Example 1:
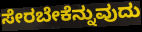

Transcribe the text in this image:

ಸೇರಬೇಕೆನ್ನುವುದು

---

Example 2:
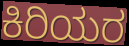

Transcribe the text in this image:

ಕಿರಿಯರ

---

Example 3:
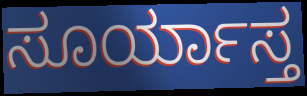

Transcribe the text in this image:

ಸೂರ್ಯಾಸ್ತ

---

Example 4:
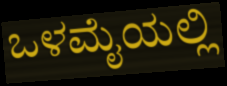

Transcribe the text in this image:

ಒಳಮೈಯಲ್ಲಿ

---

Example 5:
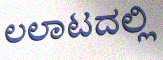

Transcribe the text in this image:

ಲಲಾಟದಲ್ಲಿ